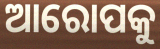
ଆରୋପକୁ